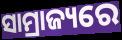
ସାମ୍ରାଜ୍ୟରେ